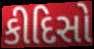
કીદિસો